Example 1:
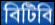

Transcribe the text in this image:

বিটিবি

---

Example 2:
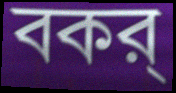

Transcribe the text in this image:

বকর্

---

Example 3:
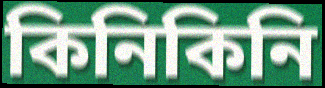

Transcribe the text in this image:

কিনিকিনি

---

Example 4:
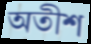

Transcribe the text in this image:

অতীশ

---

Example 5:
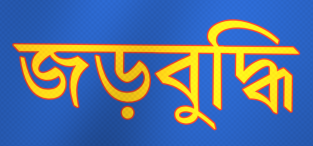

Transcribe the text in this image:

জড়বুদ্ধি